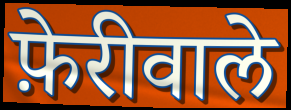
फ़ेरीवाले